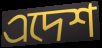
এদেশ